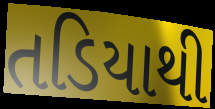
તડિયાથી